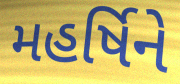
મહર્ષિને